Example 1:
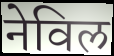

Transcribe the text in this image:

नेविल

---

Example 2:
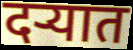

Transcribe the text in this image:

दऱ्यात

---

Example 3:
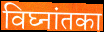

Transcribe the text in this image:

विघ्नांतका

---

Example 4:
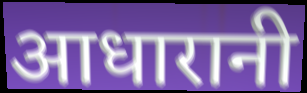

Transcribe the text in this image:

आधारानी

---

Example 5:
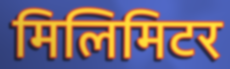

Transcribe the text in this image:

मिलिमिटर